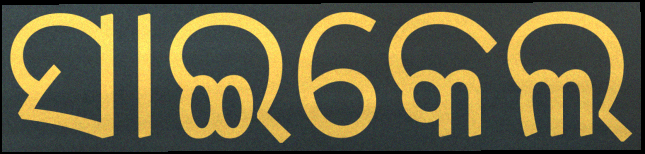
ସାଇକେଲ